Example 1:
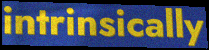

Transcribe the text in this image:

intrinsically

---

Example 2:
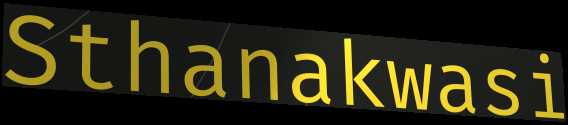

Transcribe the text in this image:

Sthanakwasi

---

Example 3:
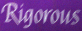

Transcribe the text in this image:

Rigorous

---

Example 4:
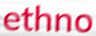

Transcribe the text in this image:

ethno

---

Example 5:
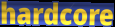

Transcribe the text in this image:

hardcore